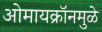
ओमायक्रॉनमुळे